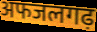
अफजलगढ़